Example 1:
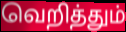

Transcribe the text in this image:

வெறித்தும்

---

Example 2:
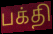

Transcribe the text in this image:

பக்தி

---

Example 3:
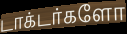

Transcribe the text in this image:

டாக்டர்களோ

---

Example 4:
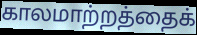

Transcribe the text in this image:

காலமாற்றத்தைக்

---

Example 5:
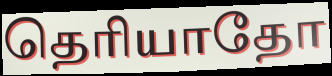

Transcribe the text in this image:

தெரியாதோ